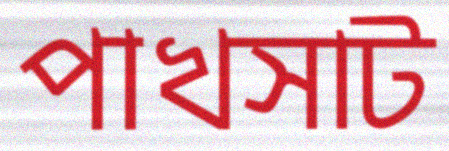
পাখসাট